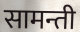
सामन्ती